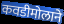
कवडीमोलाने